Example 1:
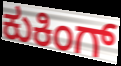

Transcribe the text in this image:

ಕುಕಿಂಗ್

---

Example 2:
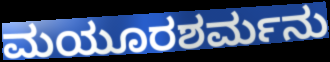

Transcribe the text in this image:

ಮಯೂರಶರ್ಮನು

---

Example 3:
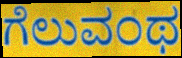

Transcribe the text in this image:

ಗೆಲುವಂಥ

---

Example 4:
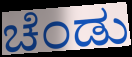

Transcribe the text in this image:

ಚೆಂಡು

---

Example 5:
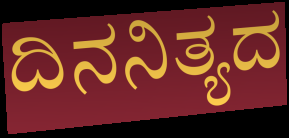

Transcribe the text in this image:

ದಿನನಿತ್ಯದ